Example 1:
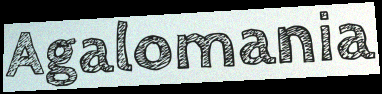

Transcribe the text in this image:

Agalomania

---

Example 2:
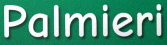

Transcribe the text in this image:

Palmieri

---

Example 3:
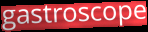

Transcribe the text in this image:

gastroscope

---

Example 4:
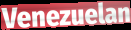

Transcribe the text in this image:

Venezuelan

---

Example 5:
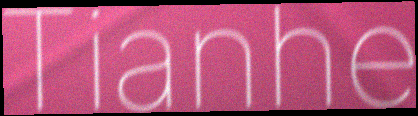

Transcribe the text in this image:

Tianhe